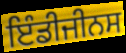
ਇੰਡੀਜੀਨਸ